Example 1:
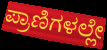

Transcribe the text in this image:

ಪ್ರಾಣಿಗಳಲ್ಲೇ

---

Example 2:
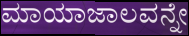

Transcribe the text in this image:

ಮಾಯಾಜಾಲವನ್ನೇ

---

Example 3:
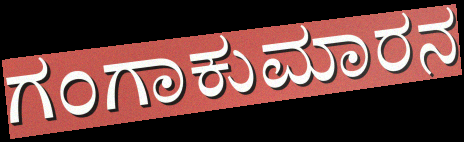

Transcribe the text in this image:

ಗಂಗಾಕುಮಾರನ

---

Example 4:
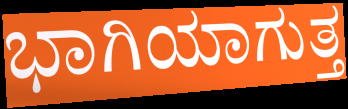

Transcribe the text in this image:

ಭಾಗಿಯಾಗುತ್ತ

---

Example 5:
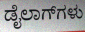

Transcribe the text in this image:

ಡೈಲಾಗ್‌ಗಳು